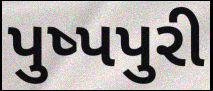
પુષ્પપુરી